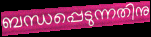
ബന്ധപ്പെടുന്നതിനു